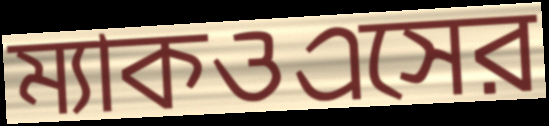
ম্যাকওএসের